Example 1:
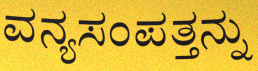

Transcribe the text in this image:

ವನ್ಯಸಂಪತ್ತನ್ನು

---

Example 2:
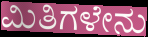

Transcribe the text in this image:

ಮಿತಿಗಳೇನು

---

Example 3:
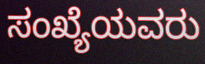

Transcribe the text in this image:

ಸಂಖ್ಯೆಯವರು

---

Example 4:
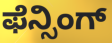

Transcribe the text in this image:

ಫೆನ್ಸಿಂಗ್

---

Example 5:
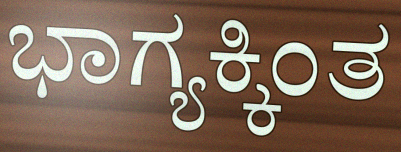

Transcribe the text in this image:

ಭಾಗ್ಯಕ್ಕಿಂತ